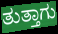
ತುತ್ತಾಗು